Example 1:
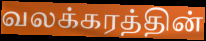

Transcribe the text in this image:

வலக்கரத்தின்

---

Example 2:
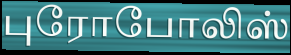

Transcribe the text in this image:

புரோபோலிஸ்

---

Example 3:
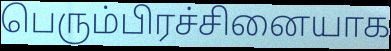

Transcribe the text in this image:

பெரும்பிரச்சினையாக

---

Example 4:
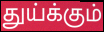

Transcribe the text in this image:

துய்க்கும்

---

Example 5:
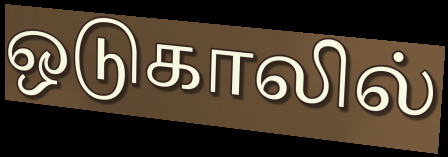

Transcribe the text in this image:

ஒடுகாலில்